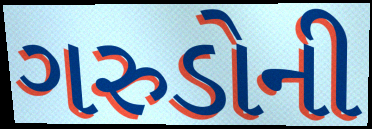
ગરુડોની